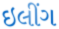
ઇલીંગ